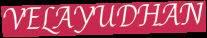
VELAYUDHAN